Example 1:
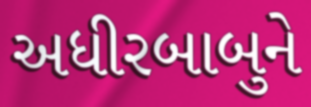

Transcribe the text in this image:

અધીરબાબુને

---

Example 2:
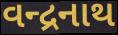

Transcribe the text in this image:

વન્દ્રનાથ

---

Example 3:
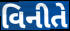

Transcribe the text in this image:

વિનીતે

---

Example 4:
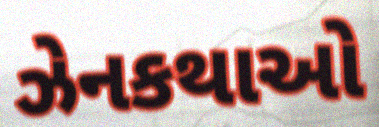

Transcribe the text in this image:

ઝેનકથાઓ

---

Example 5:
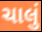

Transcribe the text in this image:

ચાલું